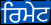
ਰਿਮੇਟ